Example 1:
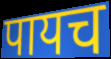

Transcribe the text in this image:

पायच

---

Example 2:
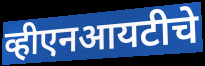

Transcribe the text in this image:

व्हीएनआयटीचे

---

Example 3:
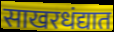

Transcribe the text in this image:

साखरधंद्यात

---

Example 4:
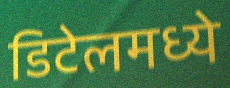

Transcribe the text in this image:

डिटेलमध्ये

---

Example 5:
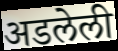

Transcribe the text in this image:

अडलेली